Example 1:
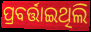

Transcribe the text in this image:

ପ୍ରବର୍ତ୍ତାଇଥିଲି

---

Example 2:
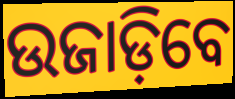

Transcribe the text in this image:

ଉଜାଡ଼ିବେ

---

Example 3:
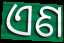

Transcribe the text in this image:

ଏଣ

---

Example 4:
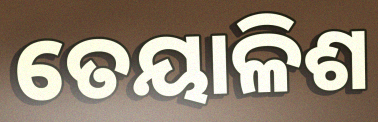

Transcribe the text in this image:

ତେୟାଳିଶ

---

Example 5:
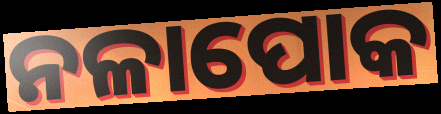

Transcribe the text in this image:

ନଳାପୋକ